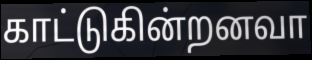
காட்டுகின்றனவா